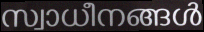
സ്വാധീനങ്ങൾ